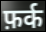
फ़र्क